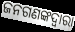
ଜନଗଣଙ୍କଦ୍ୱାରା